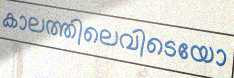
കാലത്തിലെവിടെയോ